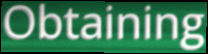
Obtaining